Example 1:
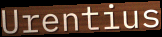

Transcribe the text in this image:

Urentius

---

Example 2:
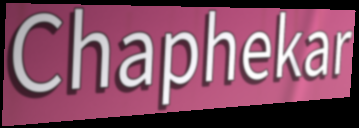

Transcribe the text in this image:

Chaphekar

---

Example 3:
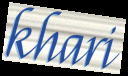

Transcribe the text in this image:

khari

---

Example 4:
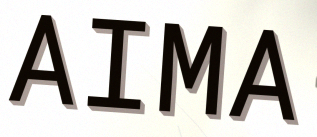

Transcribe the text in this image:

AIMA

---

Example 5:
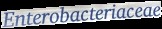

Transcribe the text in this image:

Enterobacteriaceae